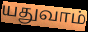
யதுவாம்